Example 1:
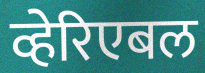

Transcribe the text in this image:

व्हेरिएबल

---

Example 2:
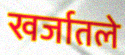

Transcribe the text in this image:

खर्जातले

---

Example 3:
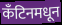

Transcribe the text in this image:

कँटिनमधून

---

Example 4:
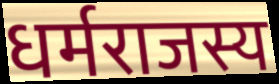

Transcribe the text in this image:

धर्मराजस्य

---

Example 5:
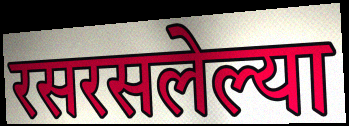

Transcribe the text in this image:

रसरसलेल्या